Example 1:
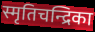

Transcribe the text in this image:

स्मृतिचन्द्रिका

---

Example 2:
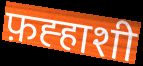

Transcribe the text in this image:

फ़ह्हाशी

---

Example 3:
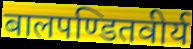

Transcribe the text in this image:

बालपण्डितवीर्य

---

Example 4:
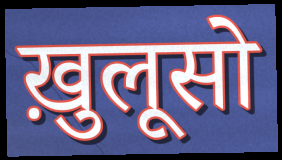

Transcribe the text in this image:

ख़ुलूसो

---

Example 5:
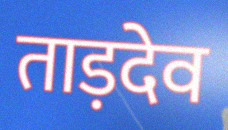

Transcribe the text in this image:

ताड़देव